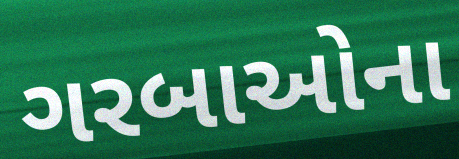
ગરબાઓના